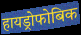
हायड्रोफोबिक